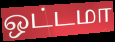
ஒட்டமா